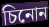
চিনোন